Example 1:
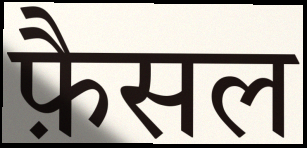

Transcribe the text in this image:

फ़ैसल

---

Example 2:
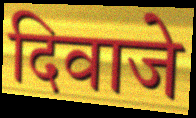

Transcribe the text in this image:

दिवाजे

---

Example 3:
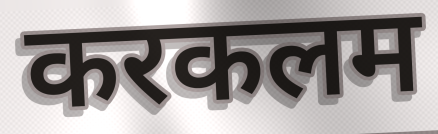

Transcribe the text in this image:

करकलम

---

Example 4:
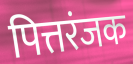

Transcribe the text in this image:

पित्तरंजक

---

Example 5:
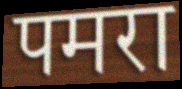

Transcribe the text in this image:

पमरा